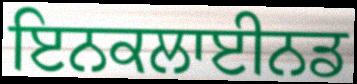
ਇਨਕਲਾਈਨਡ